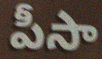
పీసా